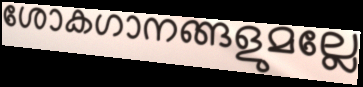
ശോകഗാനങ്ങളുമല്ലേ